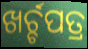
ଖର୍ଚ୍ଚପତ୍ର